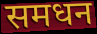
समधन